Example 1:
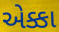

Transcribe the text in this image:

એક્કા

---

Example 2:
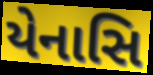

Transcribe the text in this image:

યેનાસિ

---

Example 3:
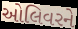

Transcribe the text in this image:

ઓલિવરને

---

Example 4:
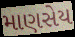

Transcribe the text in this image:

માણસેય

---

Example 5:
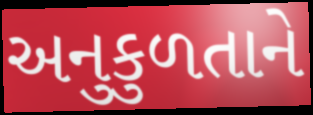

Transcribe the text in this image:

અનુકુળતાને